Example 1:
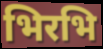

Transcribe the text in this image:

भिरभि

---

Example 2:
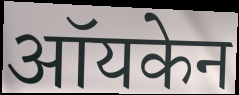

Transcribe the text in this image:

ऑयकेन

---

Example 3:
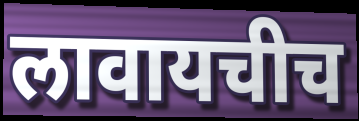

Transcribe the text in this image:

लावायचीच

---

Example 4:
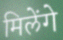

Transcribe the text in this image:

मिलेंगे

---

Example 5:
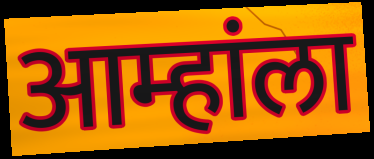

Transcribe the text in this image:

आम्हांला